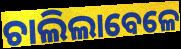
ଚାଲିଲାବେଳେ